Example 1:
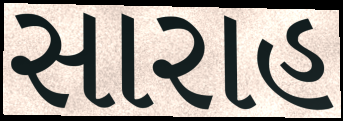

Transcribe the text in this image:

સારાહ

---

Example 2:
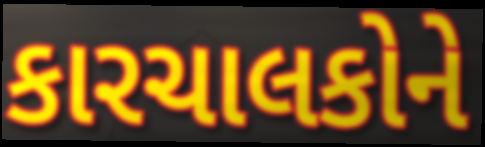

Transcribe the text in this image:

કારચાલકોને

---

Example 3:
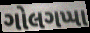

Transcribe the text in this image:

ગોલગપ્પા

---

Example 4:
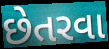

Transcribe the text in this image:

છેતરવા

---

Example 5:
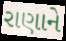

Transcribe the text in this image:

રાણાને